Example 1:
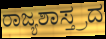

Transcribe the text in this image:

ರಾಜ್ಯಶಾಸ್ತ್ರದ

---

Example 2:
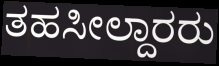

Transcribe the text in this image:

ತಹಸೀಲ್ದಾರರು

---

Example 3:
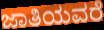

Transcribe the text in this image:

ಜಾತಿಯವರೆ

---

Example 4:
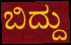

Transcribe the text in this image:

ಬಿದ್ದು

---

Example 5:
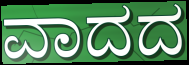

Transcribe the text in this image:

ವಾದದ